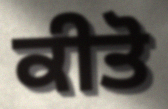
ਕੀਤੋ